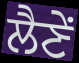
ਲੈਣੇਂ